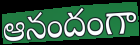
ఆనందంగా